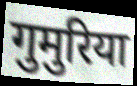
गुमुरिया